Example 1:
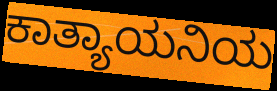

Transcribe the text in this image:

ಕಾತ್ಯಾಯನಿಯ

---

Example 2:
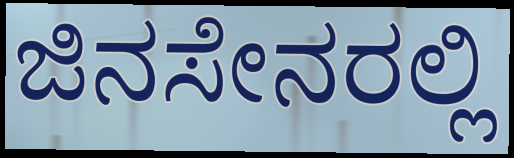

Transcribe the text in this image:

ಜಿನಸೇನರಲ್ಲಿ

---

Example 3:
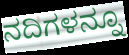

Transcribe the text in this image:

ನದಿಗಳನ್ನೂ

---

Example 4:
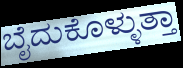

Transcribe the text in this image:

ಬೈದುಕೊಳ್ಳುತ್ತಾ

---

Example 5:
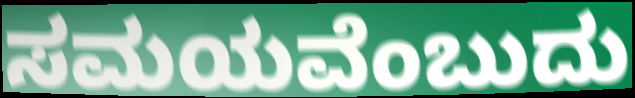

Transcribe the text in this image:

ಸಮಯವೆಂಬುದು